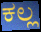
ಕಲ್ಲ